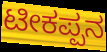
ಟೀಕಪ್ಪನ